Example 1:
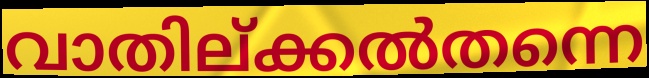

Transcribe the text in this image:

വാതില്ക്കൽതന്നെ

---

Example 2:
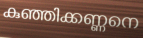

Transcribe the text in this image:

കുഞ്ഞിക്കണ്ണനെ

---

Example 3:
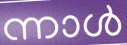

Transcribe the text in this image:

ന്നാൾ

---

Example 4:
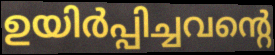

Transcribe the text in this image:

ഉയിർപ്പിച്ചവന്റെ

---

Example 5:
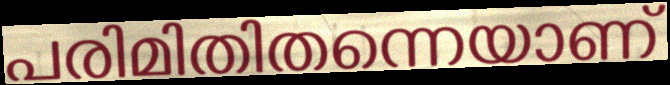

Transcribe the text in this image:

പരിമിതിതന്നെയാണ്